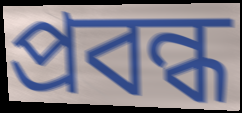
প্ৰবন্ধ